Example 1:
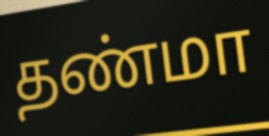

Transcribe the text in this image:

தண்மா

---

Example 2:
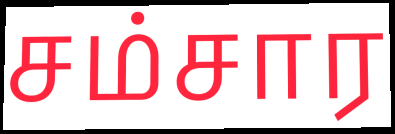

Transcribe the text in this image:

சம்சார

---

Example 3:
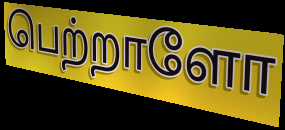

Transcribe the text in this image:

பெற்றாளோ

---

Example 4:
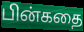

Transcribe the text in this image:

பின்கதை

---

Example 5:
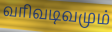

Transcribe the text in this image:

வரிவடிவமும்